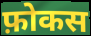
फ़ोकस